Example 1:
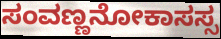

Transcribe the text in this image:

ಸಂವಣ್ಣನೋಕಾಸಸ್ಸ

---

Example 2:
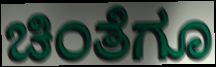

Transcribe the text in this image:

ಚಿಂತೆಗೂ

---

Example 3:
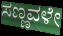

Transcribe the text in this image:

ಸಣ್ಣವಳೇ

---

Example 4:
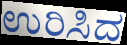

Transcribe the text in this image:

ಉರಿಸಿದ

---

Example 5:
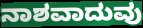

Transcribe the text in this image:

ನಾಶವಾದುವು